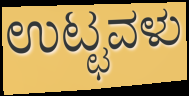
ಉಟ್ಟವಳು